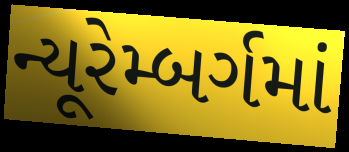
ન્યૂરેમ્બર્ગમાં